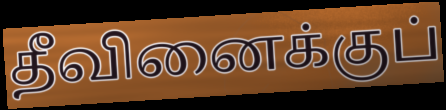
தீவினைக்குப்